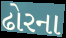
ઢોરના